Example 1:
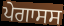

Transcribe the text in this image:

ਪੇਗਾਸਸ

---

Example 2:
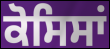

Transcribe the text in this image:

ਕੋਸਿਸਾਂ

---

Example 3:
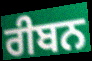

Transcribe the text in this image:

ਰੀਬਨ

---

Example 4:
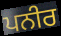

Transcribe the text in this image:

ਪਨੀਰ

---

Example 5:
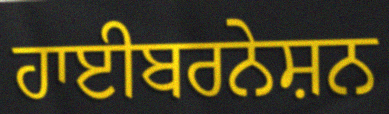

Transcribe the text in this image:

ਹਾਈਬਰਨੇਸ਼ਨ